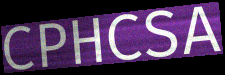
CPHCSA